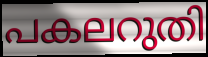
പകലറുതി